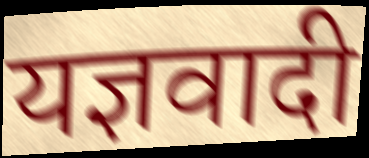
यज्ञवादी